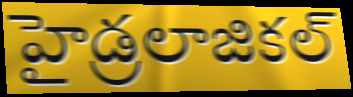
హైడ్రలాజికల్